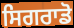
ਸਿਗਰਾਡੋ